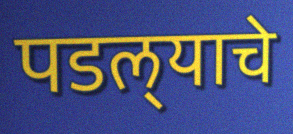
पडल्याचे